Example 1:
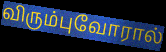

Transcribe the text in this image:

விரும்புவோரால்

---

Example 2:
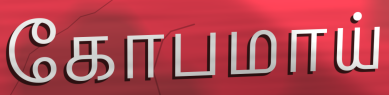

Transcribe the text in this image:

கோபமாய்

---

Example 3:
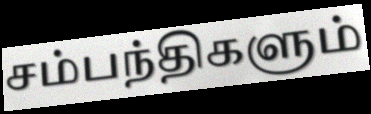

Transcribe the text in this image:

சம்பந்திகளும்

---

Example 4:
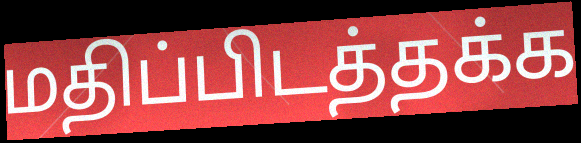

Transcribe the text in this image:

மதிப்பிடத்தக்க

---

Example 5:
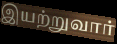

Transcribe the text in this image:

இயற்றுவார்